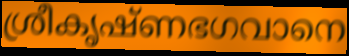
ശ്രീകൃഷ്ണഭഗവാനെ